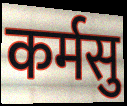
कर्मसु